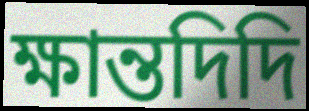
ক্ষান্তদিদি